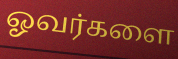
ஓவர்களை